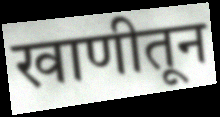
खाणीतून